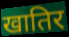
खातिर